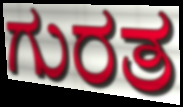
ಗುರತ